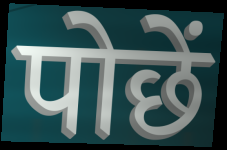
पोछें